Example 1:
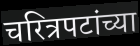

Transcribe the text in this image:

चरित्रपटांच्या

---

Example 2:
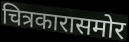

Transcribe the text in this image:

चित्रकारासमोर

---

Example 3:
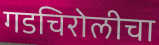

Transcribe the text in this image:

गडचिरोलीचा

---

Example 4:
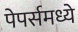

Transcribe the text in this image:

पेपर्समध्ये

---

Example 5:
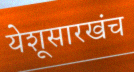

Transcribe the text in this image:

येशूसारखंच